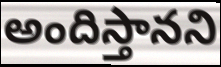
అందిస్తానని